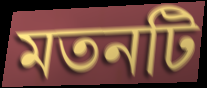
মতনটি